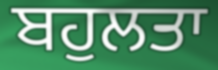
ਬਹੁਲਤਾ